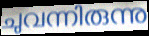
ചുവന്നിരുന്നു